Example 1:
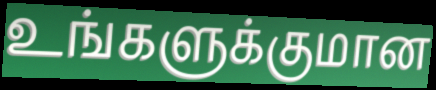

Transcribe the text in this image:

உங்களுக்குமான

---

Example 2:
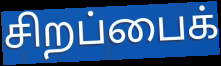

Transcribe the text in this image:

சிறப்பைக்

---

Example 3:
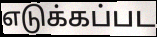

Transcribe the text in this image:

எடுக்கப்பட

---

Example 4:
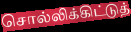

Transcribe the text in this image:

சொல்லிக்கிட்டுத்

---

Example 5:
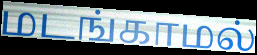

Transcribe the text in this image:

மடங்காமல்